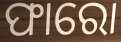
ଫାରୋ